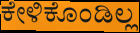
ಕೇಳಿಕೊಂಡಿಲ್ಲ